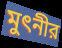
মুৎনীর